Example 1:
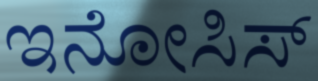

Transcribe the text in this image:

ಇನೋಸಿಸ್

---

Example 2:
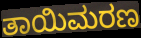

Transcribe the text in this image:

ತಾಯಿಮರಣ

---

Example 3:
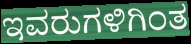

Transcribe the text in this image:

ಇವರುಗಳಿಗಿಂತ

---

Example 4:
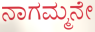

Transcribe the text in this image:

ನಾಗಮ್ಮನೇ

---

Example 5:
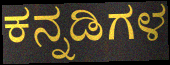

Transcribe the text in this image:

ಕನ್ನಡಿಗಳ